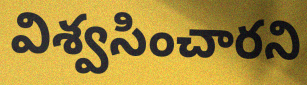
విశ్వసించారని